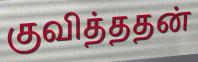
குவித்ததன்